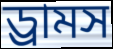
ড্রামস